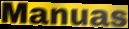
Manuas